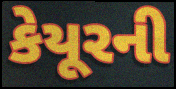
કેયૂરની